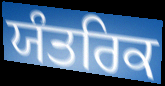
ਯੰਤਰਿਕ